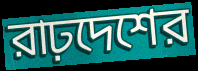
রাঢ়দেশের